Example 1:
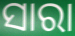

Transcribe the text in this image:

ସାରା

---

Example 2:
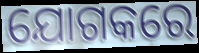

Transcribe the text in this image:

ଯୋଗକରେ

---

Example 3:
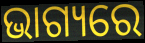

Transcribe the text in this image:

ଭାଗ୍ୟରେ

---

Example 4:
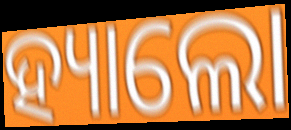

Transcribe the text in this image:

ହ୍ୟାଲୋ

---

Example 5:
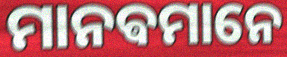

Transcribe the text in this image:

ମାନଵମାନେ